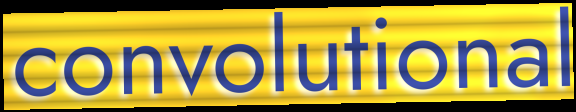
convolutional